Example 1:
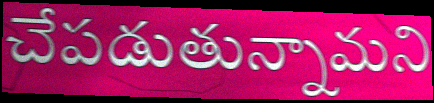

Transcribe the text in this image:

చేపడుతున్నామని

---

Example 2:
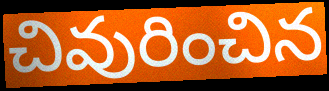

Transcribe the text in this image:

చివురించిన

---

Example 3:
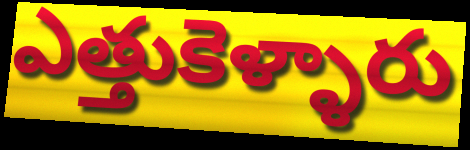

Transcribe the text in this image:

ఎత్తుకెళ్ళారు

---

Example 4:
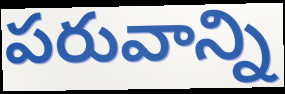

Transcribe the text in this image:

పరువాన్ని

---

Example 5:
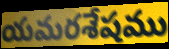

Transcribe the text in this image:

యమరశేషము